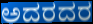
ಅದರದರ